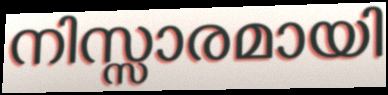
നിസ്സാരമായി